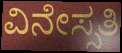
ವಿನೇಸ್ಸತಿ